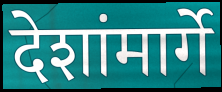
देशांमार्गे